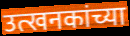
उत्खनकांच्या